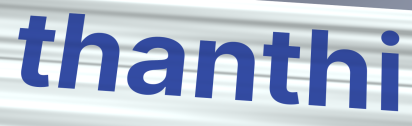
thanthi